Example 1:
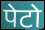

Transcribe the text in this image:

पेटो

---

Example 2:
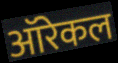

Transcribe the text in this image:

ऑरेकल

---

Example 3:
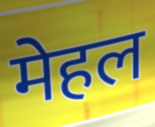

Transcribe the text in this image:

मेहल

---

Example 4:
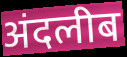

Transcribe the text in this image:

अंदलीब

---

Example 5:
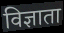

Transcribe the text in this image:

विज्ञाता